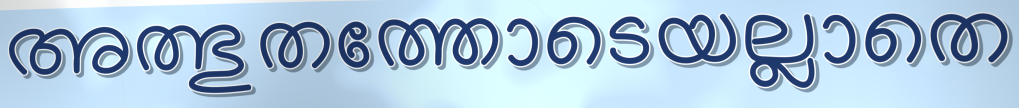
അത്ഭുതത്തോടെയല്ലാതെ